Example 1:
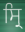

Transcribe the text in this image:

ਸ੍ਰਿ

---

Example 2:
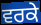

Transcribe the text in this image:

ਵਰਕੇ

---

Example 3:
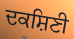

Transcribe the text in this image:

ਦਕਸ਼ਿਣੀ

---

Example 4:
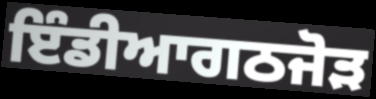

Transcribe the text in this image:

ਇੰਡੀਆਗਠਜੋੜ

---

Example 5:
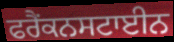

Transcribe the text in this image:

ਫਰੈਂਕਨਸਟਾਈਨ